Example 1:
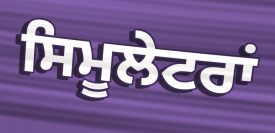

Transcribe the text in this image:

ਸਿਮੂਲੇਟਰਾਂ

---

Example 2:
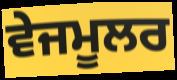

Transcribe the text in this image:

ਵੇਜਮੂਲਰ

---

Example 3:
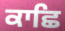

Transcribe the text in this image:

ਕਾਛਿ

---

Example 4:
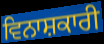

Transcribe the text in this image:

ਵਿਨਾਸ਼ਕਾਰੀ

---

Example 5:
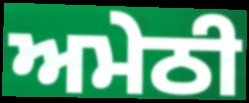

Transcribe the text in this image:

ਅਮੇਠੀ